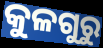
କୁଳଗୁରୁ